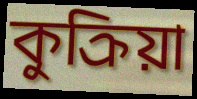
কুক্রিয়া